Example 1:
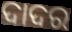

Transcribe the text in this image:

ଦାଦର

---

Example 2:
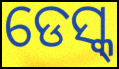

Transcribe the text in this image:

ଡେସ୍କ୍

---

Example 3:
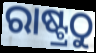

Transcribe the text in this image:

ରାଷ୍ଟ୍ରଠୁ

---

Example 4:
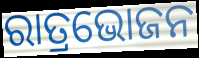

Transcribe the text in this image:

ରାତ୍ରଭୋଜନ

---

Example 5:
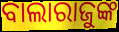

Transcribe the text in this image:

ବାଲାରାଜୁଙ୍କ